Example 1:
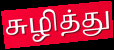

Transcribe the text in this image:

சுழித்து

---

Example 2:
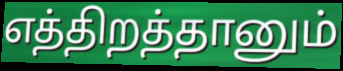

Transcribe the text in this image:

எத்திறத்தானும்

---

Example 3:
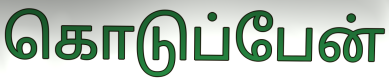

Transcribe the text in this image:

கொடுப்பேன்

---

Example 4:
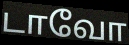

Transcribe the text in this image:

டாவோ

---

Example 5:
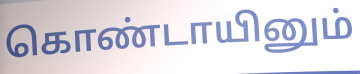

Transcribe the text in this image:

கொண்டாயினும்